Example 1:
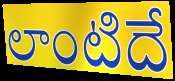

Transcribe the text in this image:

లాంటిదే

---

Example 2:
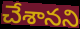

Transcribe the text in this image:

చేశానని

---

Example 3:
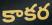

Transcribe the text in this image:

కాకర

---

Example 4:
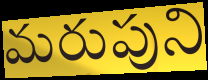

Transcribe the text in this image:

మరుపుని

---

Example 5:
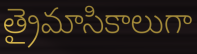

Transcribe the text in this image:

త్రైమాసికాలుగా